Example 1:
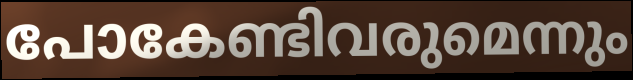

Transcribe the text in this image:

പോകേണ്ടിവരുമെന്നും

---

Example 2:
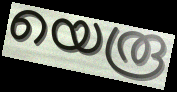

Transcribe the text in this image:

യെരൂ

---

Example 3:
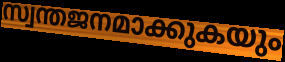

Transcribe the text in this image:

സ്വന്തജനമാക്കുകയും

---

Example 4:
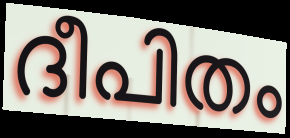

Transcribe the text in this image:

ദീപിതം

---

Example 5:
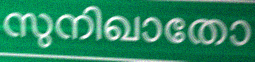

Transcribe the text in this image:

സുനിഖാതോ